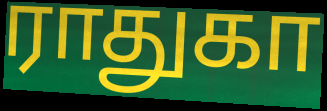
ராதுகா